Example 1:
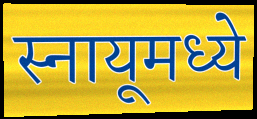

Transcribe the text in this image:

स्नायूमध्ये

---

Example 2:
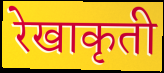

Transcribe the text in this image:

रेखाकृती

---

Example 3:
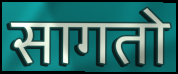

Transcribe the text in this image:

सागतो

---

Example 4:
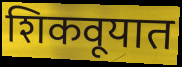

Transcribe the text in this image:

शिकवूयात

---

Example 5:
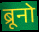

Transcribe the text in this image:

ब्रूनो